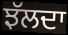
ਝੱਲਦਾ